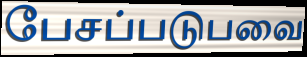
பேசப்படுபவை